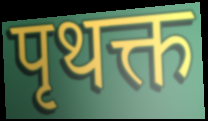
पृथक्त